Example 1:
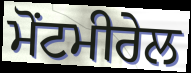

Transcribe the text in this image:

ਮੋਂਟਮੀਰੇਲ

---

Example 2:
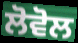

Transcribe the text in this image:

ਲੋਵੋਲ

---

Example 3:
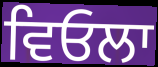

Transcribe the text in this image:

ਵਿਓਲਾ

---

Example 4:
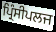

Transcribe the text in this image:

ਪ੍ਰਿੰਸੀਪਲਜ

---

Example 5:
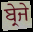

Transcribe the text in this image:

ਬ੍ਰੇਜੇ